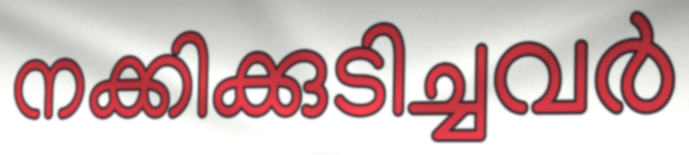
നക്കിക്കുടിച്ചവർ